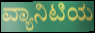
ವ್ಯಾನಿಟಿಯ